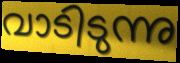
വാടിടുന്നു